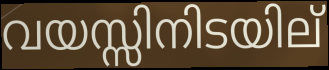
വയസ്സിനിടയില്